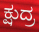
ಕ್ಷುದ್ರ